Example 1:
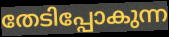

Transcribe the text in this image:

തേടിപ്പോകുന്ന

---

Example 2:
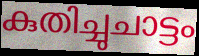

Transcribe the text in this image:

കുതിച്ചുചാട്ടം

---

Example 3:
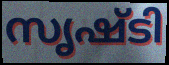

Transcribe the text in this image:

സൃഷ്ടി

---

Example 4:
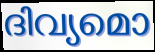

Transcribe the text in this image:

ദിവ്യമൊ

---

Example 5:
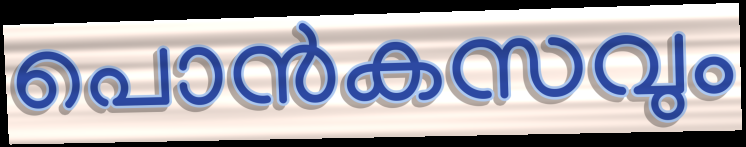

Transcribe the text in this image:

പൊൻകസവും